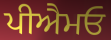
ਪੀਐਮਓ